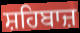
ਸ਼ਹਿਬਾਜ਼